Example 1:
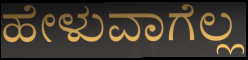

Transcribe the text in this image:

ಹೇಳುವಾಗೆಲ್ಲ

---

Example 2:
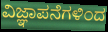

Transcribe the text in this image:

ವಿಜ್ಞಾಪನೆಗಳಿಂದ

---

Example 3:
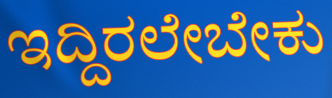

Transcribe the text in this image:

ಇದ್ದಿರಲೇಬೇಕು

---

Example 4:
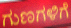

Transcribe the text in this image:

ಗುಣಗಳಿಗೆ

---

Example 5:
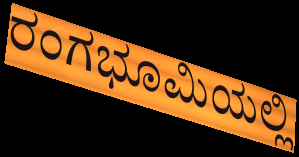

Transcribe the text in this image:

ರಂಗಭೂಮಿಯಲ್ಲಿ